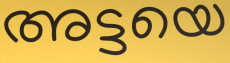
അട്ടയെ